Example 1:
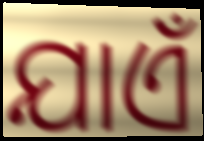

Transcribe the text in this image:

ଯାଏଁ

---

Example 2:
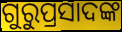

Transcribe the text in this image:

ଗୁରୁପ୍ରସାଦଙ୍କ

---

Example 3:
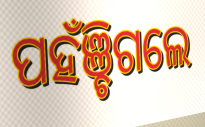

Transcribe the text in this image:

ପହଁଞ୍ଚିଗଲେ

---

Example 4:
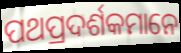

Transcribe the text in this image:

ପଥପ୍ରଦର୍ଶକମାନେ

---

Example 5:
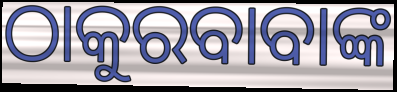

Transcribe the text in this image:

ଠାକୁରବାବାଙ୍କ